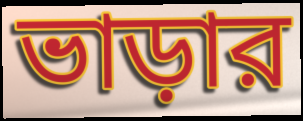
ভাড়ার